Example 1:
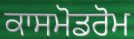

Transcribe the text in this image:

ਕਾਸਮੋਡਰੋਮ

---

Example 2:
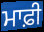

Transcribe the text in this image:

ਮਾਫ਼ੀ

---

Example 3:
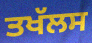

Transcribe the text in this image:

ਤਖੱਲਸ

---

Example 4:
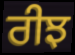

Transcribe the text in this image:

ਰੀਝ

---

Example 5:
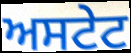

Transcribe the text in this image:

ਅਸਟੇਟ